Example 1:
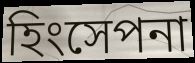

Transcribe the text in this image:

হিংসেপনা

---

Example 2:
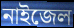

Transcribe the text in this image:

নাইজেল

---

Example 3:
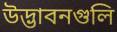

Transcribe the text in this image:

উদ্ভাবনগুলি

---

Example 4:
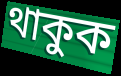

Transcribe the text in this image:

থাকুক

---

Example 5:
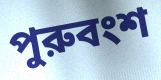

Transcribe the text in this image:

পুরুবংশ